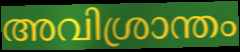
അവിശ്രാന്തം